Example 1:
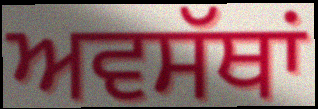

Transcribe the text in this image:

ਅਵਸੱਥਾਂ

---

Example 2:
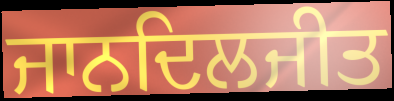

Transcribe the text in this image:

ਜਾਨਦਿਲਜੀਤ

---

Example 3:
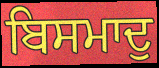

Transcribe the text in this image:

ਬਿਸਮਾਦੁ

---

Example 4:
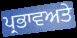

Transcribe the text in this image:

ਪ੍ਰਭਾਵਅਤੇ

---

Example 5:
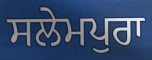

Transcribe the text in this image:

ਸਲੇਮਪੁਰਾ